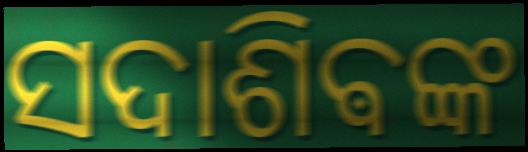
ସଦାଶିଵଙ୍କ